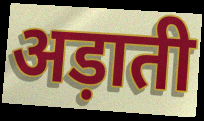
अड़ाती